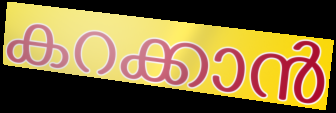
കറക്കാൻ